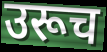
उरूच